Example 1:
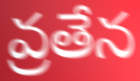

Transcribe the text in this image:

వ్రతేన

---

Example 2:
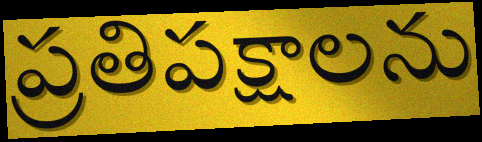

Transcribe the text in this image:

ప్రతిపక్షాలను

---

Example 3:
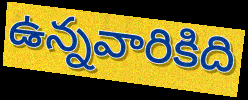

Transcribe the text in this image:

ఉన్నవారికిది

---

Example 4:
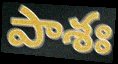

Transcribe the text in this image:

పాశః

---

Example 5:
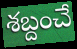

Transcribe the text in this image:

శబ్దంచే